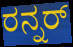
ರನ್ನರ್